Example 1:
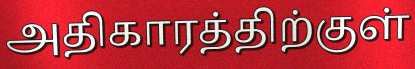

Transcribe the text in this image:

அதிகாரத்திற்குள்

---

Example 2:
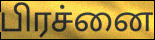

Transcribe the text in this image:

பிரச்னை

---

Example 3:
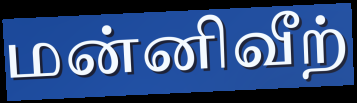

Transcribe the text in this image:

மன்னிவீற்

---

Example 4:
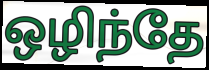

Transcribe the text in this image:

ஒழிந்தே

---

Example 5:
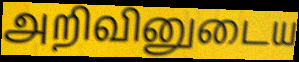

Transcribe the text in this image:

அறிவினுடைய